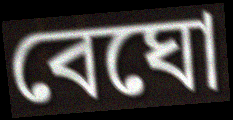
বেঘো